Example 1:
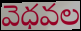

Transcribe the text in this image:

వెధవల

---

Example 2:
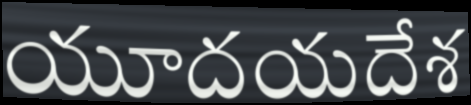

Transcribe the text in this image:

యూదయదేశ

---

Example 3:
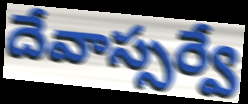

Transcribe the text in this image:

దేవాస్సర్వే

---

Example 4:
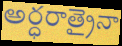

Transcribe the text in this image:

అర్ధరాత్రైనా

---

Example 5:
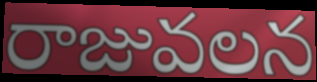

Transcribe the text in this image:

రాజువలన